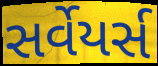
સર્વેયર્સ